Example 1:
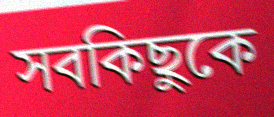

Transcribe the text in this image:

সবকিছুকে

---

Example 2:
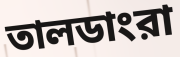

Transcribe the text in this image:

তালডাংরা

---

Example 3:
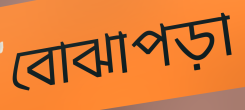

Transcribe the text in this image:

বোঝাপড়া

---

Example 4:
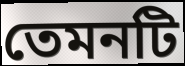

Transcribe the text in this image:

তেমনটি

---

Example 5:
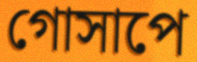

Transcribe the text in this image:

গোসাপে